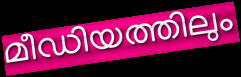
മീഡിയത്തിലും